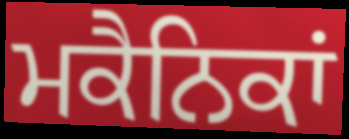
ਮਕੈਨਿਕਾਂ